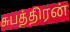
சுபத்திரன்